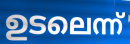
ഉടലെന്ന്